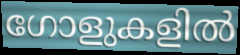
ഗോളുകളിൽ